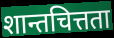
शान्तचित्तता